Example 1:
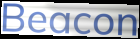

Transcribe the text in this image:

Beacon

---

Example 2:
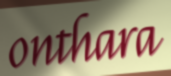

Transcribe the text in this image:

onthara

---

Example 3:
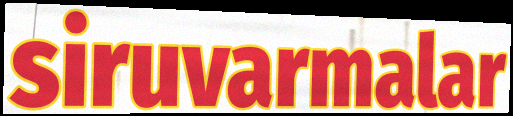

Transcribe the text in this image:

siruvarmalar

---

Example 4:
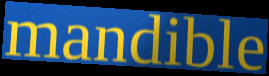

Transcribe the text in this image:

mandible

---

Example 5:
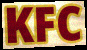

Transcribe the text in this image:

KFC